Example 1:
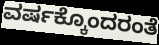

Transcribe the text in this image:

ವರ್ಷಕ್ಕೊಂದರಂತೆ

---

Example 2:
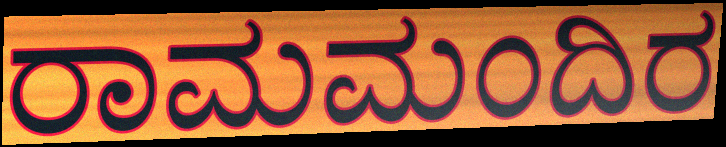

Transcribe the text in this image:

ರಾಮಮಂದಿರ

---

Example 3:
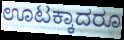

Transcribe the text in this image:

ಊಟಕ್ಕಾದರೂ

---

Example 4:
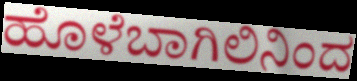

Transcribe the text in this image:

ಹೊಳೆಬಾಗಿಲಿನಿಂದ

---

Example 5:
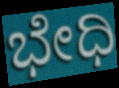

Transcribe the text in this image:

ಭೇಧಿ